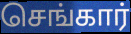
செங்கார்